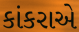
કાંકરાએ